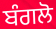
ਬੰਗਲੋ